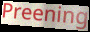
Preening